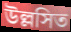
উল্লসিত